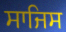
ਸਾਜਿਸ